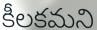
కీలకమని